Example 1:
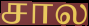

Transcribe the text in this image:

சால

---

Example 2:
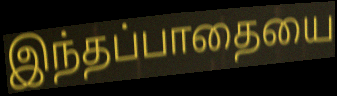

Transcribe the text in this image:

இந்தப்பாதையை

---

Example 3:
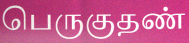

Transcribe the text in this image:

பெருகுதண்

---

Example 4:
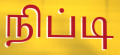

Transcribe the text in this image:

நிப்டி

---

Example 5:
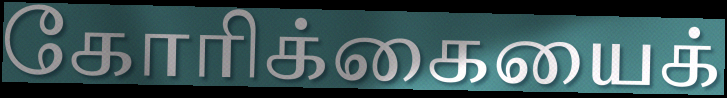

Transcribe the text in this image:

கோரிக்கையைக்